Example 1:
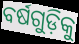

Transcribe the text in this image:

ବର୍ଷଗୁଡ଼ିକୁ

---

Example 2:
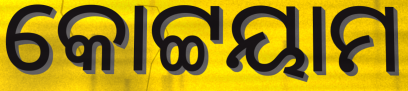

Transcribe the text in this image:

କୋଟ୍ଟୟାମ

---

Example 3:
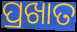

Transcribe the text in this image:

ପ୍ରଖାତ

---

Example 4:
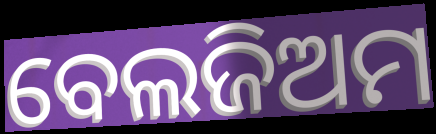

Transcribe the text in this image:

ବେଲଜିଅମ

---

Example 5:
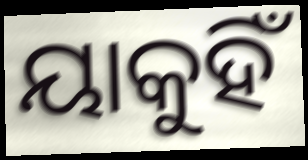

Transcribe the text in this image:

ୟାକୁହିଁ